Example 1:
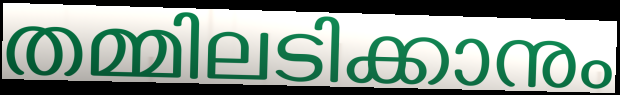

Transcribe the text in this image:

തമ്മിലടിക്കാനും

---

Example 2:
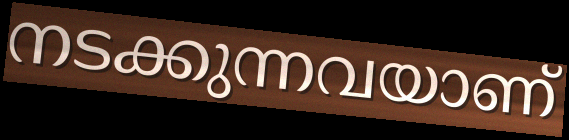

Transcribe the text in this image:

നടക്കുന്നവയാണ്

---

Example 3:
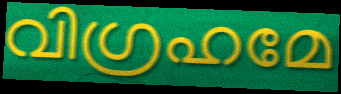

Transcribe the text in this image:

വിഗ്രഹമേ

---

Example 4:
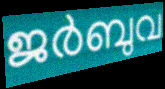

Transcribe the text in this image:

ജർബുവ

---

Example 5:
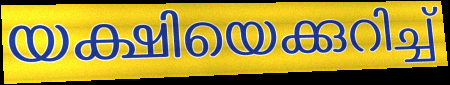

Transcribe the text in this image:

യക്ഷിയെക്കുറിച്ച്